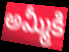
అమ్మీకి